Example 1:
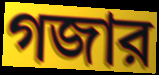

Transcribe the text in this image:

গজার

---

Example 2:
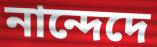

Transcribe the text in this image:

নান্দেদে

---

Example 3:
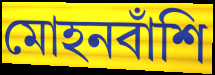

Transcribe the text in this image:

মোহনবাঁশি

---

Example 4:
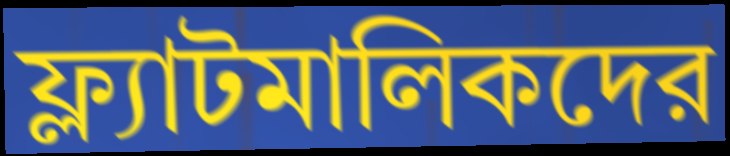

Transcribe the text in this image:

ফ্ল্যাটমালিকদের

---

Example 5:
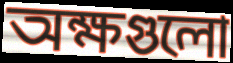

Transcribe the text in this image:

অক্ষগুলো